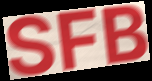
SFB